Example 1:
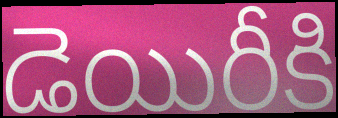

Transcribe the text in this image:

డెయిరీకి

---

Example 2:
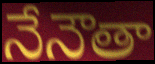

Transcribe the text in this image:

నేనౌతా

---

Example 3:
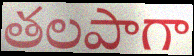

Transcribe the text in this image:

తలపాగా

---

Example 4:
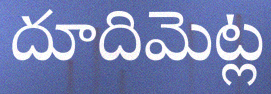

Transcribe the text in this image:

దూదిమెట్ల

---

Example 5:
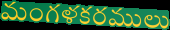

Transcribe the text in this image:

మంగళకరములు